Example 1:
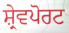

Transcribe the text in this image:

ਸ਼੍ਰੇਵਪੋਰਟ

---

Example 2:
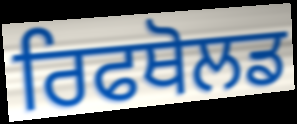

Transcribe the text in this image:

ਰਿਫਥੋਲਡ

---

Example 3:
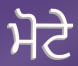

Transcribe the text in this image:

ਮੋਟੇ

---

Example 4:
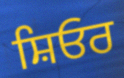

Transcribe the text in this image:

ਸ਼ਿਓਰ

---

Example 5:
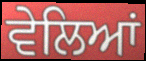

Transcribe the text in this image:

ਵੇਲਿਆਂ